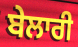
ਬੇਲਾਰੀ